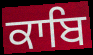
ਕਾਬਿ